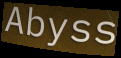
Abyss